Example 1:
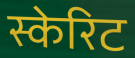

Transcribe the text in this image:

स्केरिट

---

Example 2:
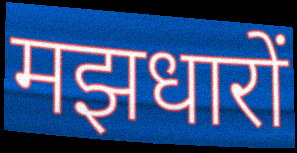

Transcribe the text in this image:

मझधारों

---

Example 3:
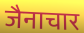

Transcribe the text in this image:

जैनाचार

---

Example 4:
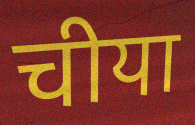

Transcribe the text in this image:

चीया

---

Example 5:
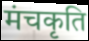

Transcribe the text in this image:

मंचकृति